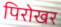
पिरोखर